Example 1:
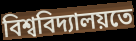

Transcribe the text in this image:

বিশ্ববিদ্যালয়তে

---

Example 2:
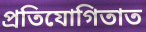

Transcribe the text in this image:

প্ৰতিযোগিতাত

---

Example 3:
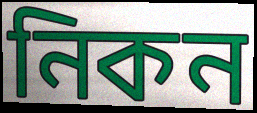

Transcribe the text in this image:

নিকন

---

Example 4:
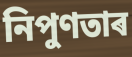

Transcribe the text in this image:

নিপুণতাৰ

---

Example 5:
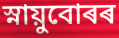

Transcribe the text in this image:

স্নায়ুবোৰৰ